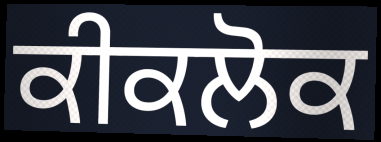
ਕੀਕਲੋਕ